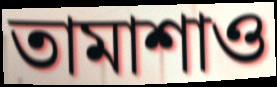
তামাশাও